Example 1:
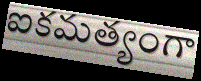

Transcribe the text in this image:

ఐకమత్యంగా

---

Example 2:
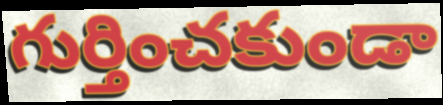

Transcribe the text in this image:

గుర్తించకుండా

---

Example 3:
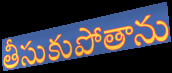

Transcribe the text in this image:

తీసుకుపోతాను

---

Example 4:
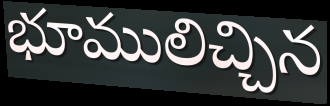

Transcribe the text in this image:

భూములిచ్చిన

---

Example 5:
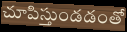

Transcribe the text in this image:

చూపిస్తుండడంతో